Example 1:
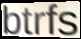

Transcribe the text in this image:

btrfs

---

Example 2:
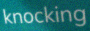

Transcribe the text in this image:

knocking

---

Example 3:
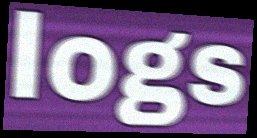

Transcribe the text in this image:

logs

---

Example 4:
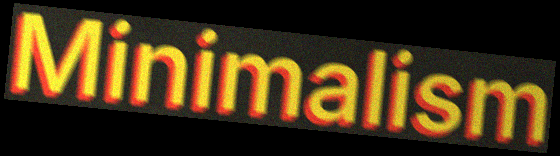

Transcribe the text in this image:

Minimalism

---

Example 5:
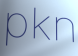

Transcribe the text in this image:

pkn